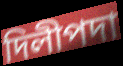
দিলীপদা